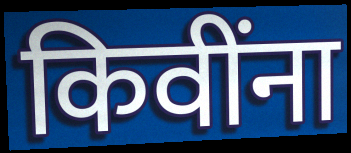
किवींना